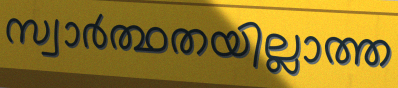
സ്വാർത്ഥതയില്ലാത്ത